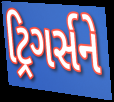
ટ્રિગર્સને